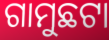
ଗାମୁଛଟା